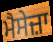
ਮੈਸੇਜ਼ਾ